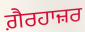
ਗ਼ੈਰਹਾਜ਼ਰ